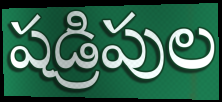
షడ్రిపుల